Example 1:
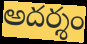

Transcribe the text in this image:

అదర్శం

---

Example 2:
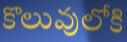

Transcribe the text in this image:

కొలువులోకి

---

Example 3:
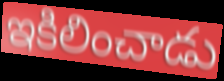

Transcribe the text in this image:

ఇకిలించాడు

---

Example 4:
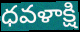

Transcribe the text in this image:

ధవళాక్షి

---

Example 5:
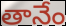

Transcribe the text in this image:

తానేం